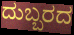
ದುಬ್ಬರದ